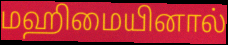
மஹிமையினால்